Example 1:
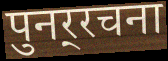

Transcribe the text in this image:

पुनर्रचना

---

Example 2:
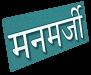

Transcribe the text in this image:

मनमर्जी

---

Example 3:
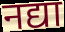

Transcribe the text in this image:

नद्या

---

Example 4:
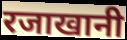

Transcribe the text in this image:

रजाखानी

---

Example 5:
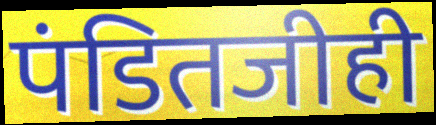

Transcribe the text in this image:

पंडितजीही